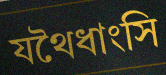
যথৈধাংসি